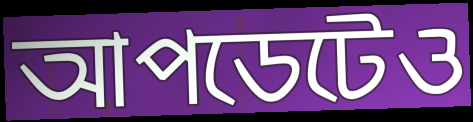
আপডেটেও